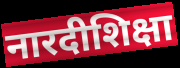
नारदीशिक्षा